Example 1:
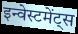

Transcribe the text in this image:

इन्वेस्टमेंट्स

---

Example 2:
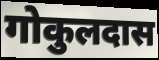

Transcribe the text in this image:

गोकुलदास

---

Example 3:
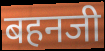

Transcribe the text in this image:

बहनजी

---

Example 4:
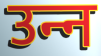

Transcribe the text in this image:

उन्न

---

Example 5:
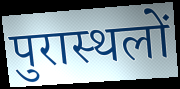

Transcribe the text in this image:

पुरास्थलों